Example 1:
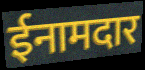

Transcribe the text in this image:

ईनामदार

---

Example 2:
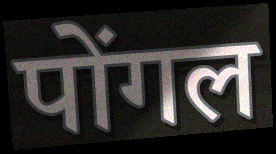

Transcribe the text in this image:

पोंगल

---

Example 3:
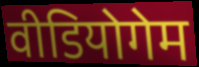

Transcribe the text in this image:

वीडियोगेम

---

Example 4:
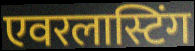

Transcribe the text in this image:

एवरलास्टिंग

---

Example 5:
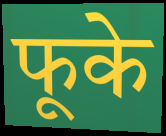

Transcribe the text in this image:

फूके